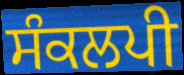
ਸੰਕਲਪੀ